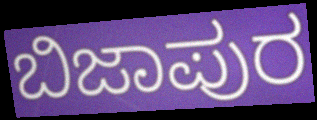
ಬಿಜಾಪುರ